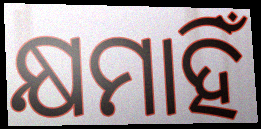
କ୍ଷମାହିଁ